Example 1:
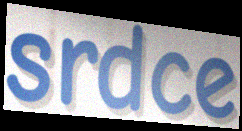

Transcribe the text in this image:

srdce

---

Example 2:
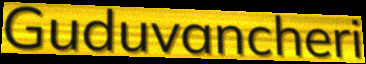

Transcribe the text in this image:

Guduvancheri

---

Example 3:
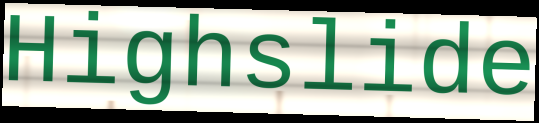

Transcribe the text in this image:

Highslide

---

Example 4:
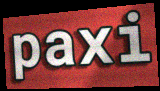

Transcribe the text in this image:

paxi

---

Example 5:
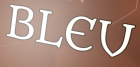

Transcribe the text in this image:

BLEU